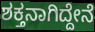
ಶಕ್ತನಾಗಿದ್ದೇನೆ